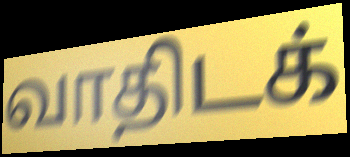
வாதிடக்